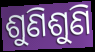
ଶୁଣିଶୁଣି